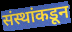
संस्थांकडून